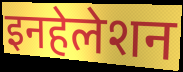
इनहेलेशन